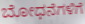
ಬೋಧನೆಗಳಿಗೆ